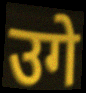
उगे